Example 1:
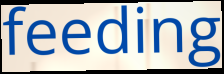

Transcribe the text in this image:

feeding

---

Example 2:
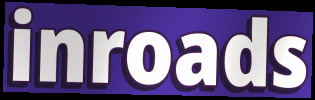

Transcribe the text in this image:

inroads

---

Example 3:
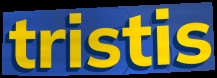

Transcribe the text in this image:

tristis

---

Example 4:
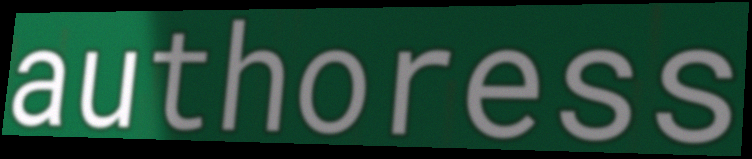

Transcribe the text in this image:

authoress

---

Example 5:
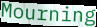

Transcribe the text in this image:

Mourning